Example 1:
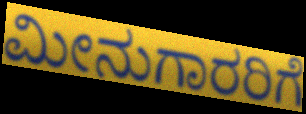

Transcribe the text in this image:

ಮೀನುಗಾರರಿಗೆ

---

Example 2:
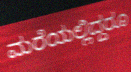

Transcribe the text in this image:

ಮರೆಯಲ್ಲಿದ್ದರೂ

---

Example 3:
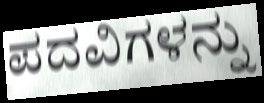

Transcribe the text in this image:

ಪದವಿಗಳನ್ನು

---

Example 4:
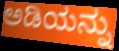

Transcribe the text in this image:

ಅಡಿಯನ್ನು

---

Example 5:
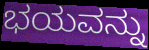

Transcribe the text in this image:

ಭಯವನ್ನು